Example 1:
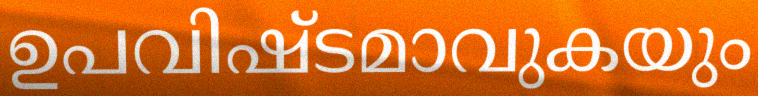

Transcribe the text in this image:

ഉപവിഷ്ടമാവുകയും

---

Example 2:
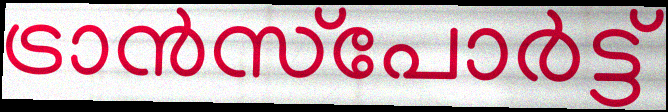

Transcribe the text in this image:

ട്രാൻസ്‌പോർട്ട്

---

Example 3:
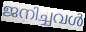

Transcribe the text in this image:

ജനിച്ചവൾ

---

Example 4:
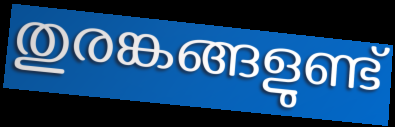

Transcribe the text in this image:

തുരങ്കങ്ങളുണ്ട്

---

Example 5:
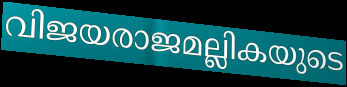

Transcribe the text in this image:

വിജയരാജമല്ലികയുടെ